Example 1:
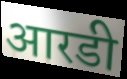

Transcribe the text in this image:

आरडी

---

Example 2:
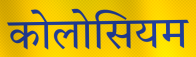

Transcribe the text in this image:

कोलोसियम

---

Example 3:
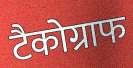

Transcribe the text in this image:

टैकोग्राफ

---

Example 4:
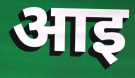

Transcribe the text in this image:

आइ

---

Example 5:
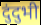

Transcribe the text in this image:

दुंदुभी